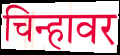
चिन्हावर